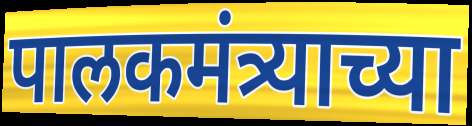
पालकमंत्र्याच्या